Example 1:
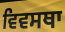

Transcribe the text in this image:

ਵਿਵਸਥਾ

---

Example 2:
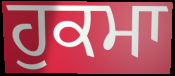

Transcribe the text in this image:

ਹੁਕਮਾ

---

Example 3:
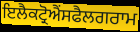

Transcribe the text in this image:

ਇਲੈਕਟ੍ਰੋਐਂਸਫੈਲਗਰਾਮ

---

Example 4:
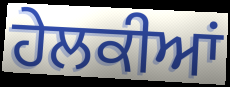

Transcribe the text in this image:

ਹੇਲਕੀਆਂ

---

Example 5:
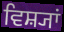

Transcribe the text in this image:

ਵਿਸ਼੍ਯਾਂ